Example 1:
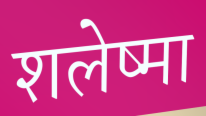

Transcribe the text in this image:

शलेष्मा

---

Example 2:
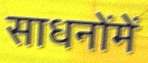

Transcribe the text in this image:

साधनोंमें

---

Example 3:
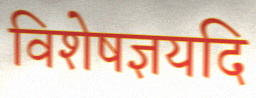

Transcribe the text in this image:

विशेषज्ञयदि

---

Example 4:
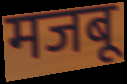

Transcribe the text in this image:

मजबू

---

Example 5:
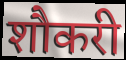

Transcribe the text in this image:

शौकरी